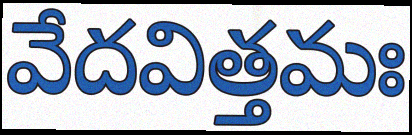
వేదవిత్తమః